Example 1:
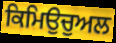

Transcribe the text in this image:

ਕਿਮਿਉਚੁਅਲ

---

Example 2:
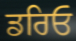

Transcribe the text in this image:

ਡਰਿਓ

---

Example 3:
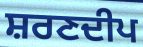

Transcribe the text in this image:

ਸ਼ਰਣਦੀਪ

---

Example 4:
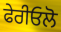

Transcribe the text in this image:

ਫੇਰੀਓਲੋ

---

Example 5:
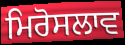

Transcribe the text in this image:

ਮਿਰੋਸਲਾਵ